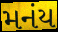
મનંય